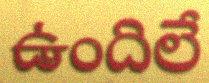
ఉందిలే